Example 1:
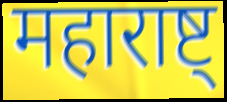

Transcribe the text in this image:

महाराष्ट्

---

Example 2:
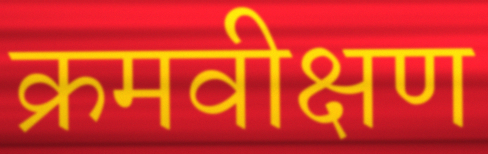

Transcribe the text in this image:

क्रमवीक्षण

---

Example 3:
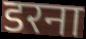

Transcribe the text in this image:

डरना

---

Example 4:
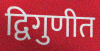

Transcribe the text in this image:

द्विगुणीत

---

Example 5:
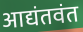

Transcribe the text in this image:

आद्यंतवंत